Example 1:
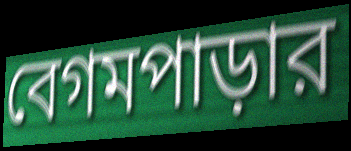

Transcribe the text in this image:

বেগমপাড়ার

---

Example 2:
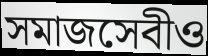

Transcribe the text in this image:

সমাজসেবীও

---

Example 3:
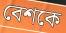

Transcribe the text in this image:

বেশকে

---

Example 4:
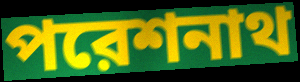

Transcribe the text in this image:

পরেশনাথ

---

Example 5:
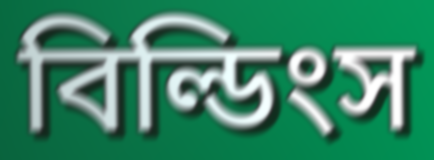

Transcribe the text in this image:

বিল্ডিংস